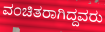
ವಂಚಿತರಾಗಿದ್ದವರು